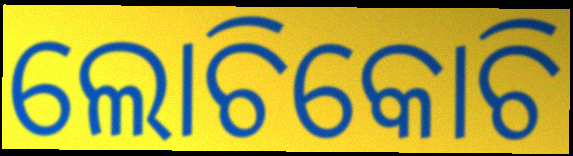
ଲୋଚିକୋଚି